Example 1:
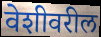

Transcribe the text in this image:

वेशीवरील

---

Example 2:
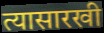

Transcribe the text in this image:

त्यासारखी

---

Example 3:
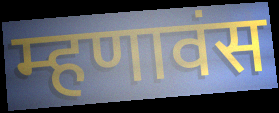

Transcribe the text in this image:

म्हणावंस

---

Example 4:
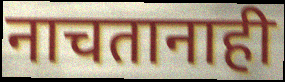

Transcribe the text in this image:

नाचतानाही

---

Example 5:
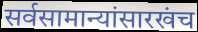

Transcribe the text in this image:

सर्वसामान्यांसारखंच